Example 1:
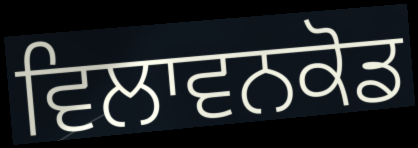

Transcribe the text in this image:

ਵਿਲਾਵਨਕੋਡ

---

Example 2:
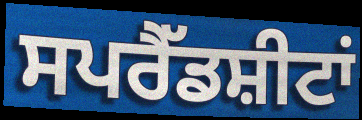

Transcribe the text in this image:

ਸਪਰੈੱਡਸ਼ੀਟਾਂ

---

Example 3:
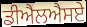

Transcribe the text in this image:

ਡੀਐਲਐਸਏ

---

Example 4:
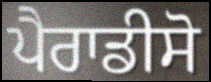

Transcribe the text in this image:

ਪੈਰਾਡੀਸੋ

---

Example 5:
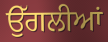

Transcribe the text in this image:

ਉੱਗਲੀਆਂ